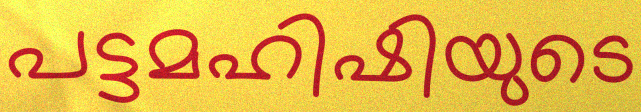
പട്ടമഹിഷിയുടെ